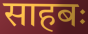
साहबः